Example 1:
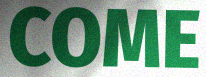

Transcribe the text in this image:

COME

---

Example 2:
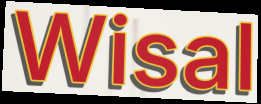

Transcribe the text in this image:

Wisal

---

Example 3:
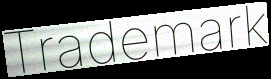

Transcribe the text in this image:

Trademark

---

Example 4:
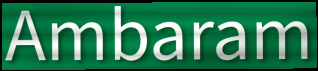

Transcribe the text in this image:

Ambaram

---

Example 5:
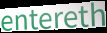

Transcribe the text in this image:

entereth